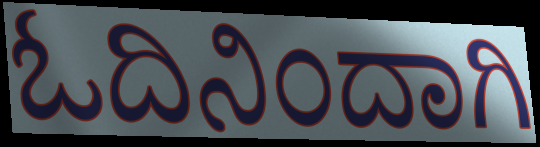
ಓದಿನಿಂದಾಗಿ